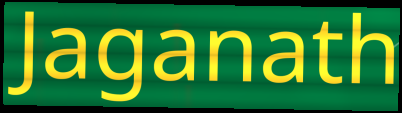
Jaganath